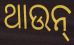
ଥାଉନ୍